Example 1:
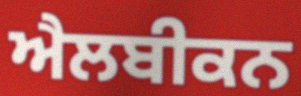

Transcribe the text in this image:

ਐਲਬੀਕਨ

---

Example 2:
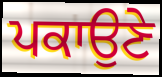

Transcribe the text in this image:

ਪਕਾਉਣੇ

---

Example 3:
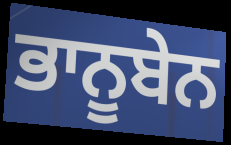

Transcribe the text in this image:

ਭਾਨੂਬੇਨ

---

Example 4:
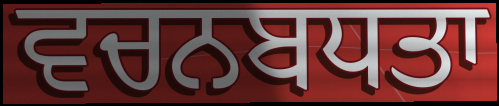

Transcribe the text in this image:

ਵਚਨਬਧਤਾ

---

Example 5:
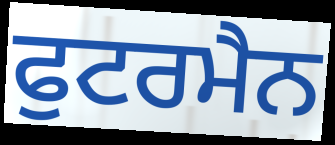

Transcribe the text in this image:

ਫੁਟਰਮੈਨ